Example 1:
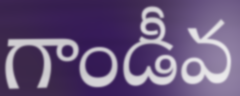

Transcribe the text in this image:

గాండీవ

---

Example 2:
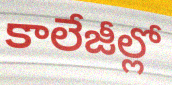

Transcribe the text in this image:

కాలేజీల్లో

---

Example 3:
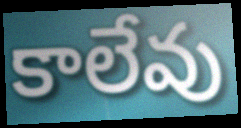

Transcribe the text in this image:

కాలేవు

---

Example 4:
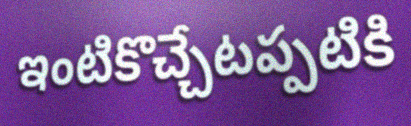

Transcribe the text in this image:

ఇంటికొచ్చేటప్పటికి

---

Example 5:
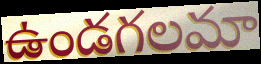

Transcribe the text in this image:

ఉండగలమా